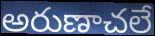
అరుణాచలే